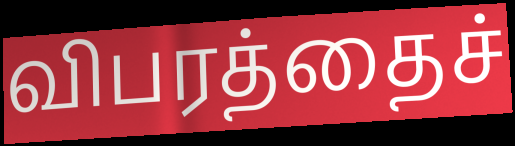
விபரத்தைச்